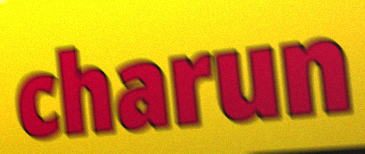
charun